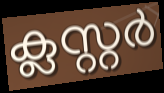
ക്ലസ്റ്റർ